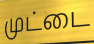
முட்டை